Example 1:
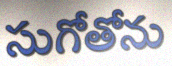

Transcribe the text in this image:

సుగోతోను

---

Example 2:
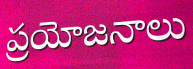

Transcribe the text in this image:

ప్రయోజనాలు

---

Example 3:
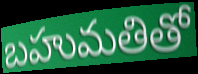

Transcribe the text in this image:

బహుమతితో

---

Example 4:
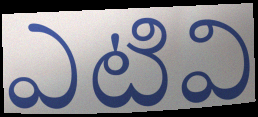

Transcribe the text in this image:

ఎటివి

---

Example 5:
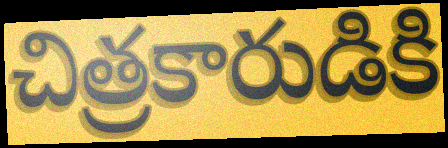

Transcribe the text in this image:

చిత్రకారుడికి